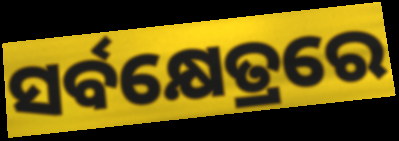
ସର୍ବକ୍ଷେତ୍ରରେ